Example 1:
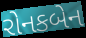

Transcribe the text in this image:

રોનકબેન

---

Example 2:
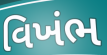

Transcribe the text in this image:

વિખંભ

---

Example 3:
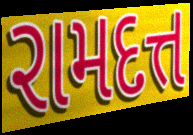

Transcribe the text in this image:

રામદત્ત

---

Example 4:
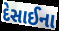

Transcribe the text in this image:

દેસાઈના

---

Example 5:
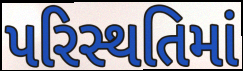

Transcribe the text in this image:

પરિસ્થતિમાં